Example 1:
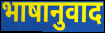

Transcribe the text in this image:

भाषानुवाद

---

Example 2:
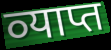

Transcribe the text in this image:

व्‍याप्‍त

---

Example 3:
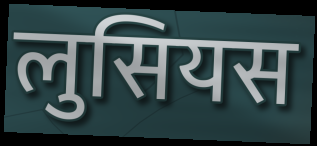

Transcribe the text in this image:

लुसियस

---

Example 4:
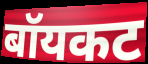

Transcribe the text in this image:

बॉयकट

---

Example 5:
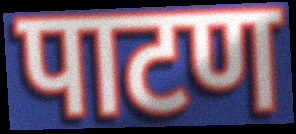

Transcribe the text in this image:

पाटण